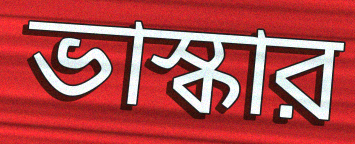
ভাস্কার